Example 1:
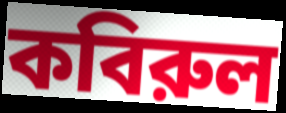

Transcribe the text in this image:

কবিরুল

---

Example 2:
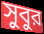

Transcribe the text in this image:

সুবুর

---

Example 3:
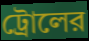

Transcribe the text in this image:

ট্রোলের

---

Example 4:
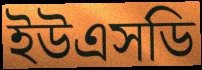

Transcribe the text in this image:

ইউএসডি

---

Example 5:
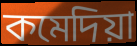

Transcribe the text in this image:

কমেদিয়া